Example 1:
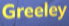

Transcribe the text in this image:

Greeley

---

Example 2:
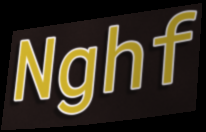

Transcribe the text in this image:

Nghf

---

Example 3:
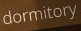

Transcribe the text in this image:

dormitory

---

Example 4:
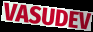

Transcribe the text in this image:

VASUDEV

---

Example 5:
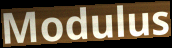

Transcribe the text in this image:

Modulus